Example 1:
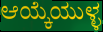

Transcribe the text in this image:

ಆಯ್ಕೆಯುಳ್ಳ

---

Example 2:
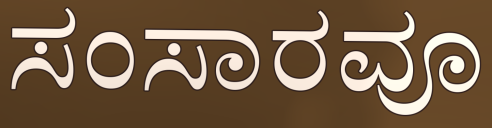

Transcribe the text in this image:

ಸಂಸಾರವೂ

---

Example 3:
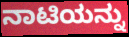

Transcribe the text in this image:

ನಾಟಿಯನ್ನು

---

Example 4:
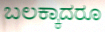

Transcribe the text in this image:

ಬಲಕ್ಕಾದರೂ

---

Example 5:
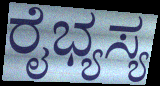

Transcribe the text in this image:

ರೈಭ್ಯಸ್ಯ